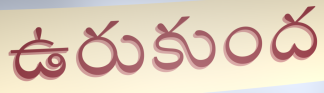
ఉరుకుంద